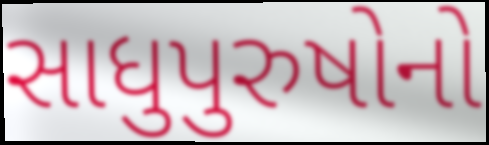
સાધુપુરુષોનો